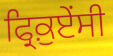
ਫ੍ਰਿਕ਼ੁਏਂਸੀ